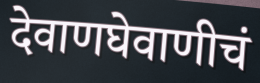
देवाणघेवाणीचं